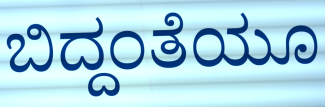
ಬಿದ್ದಂತೆಯೂ